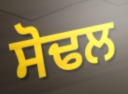
ਸੋਢਲ